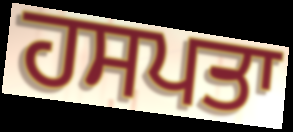
ਹਸਪਤਾ